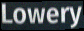
Lowery